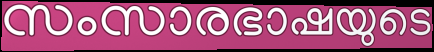
സംസാരഭാഷയുടെ